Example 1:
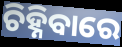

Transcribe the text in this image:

ଚିହ୍ନିବାରେ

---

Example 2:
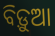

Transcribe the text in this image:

ବିଡ଼ୁଆ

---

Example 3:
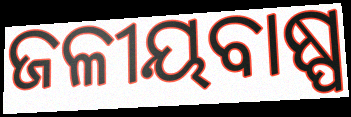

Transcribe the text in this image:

ଜଳୀୟବାଷ୍ପ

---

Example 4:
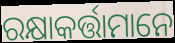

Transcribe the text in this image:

ରକ୍ଷାକର୍ତ୍ତାମାନେ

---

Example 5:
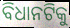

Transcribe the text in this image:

ବିଧାନଟିକୁ